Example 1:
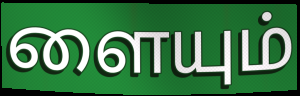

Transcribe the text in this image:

ளையும்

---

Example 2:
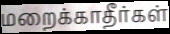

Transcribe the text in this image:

மறைக்காதீர்கள்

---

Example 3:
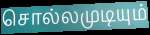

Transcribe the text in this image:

சொல்லமுடியும்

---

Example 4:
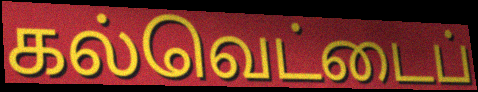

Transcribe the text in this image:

கல்வெட்டைப்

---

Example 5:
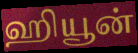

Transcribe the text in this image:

ஹியூன்